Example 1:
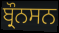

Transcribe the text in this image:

ਬ੍ਰੌਨਸਨ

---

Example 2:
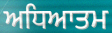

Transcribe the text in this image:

ਅਧਿਆਤਮ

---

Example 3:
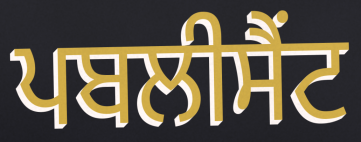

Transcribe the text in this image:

ਪਬਲੀਸੈਂਟ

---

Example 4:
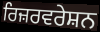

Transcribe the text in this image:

ਰਿਜ਼ਰਵਰੇਸ਼ਨ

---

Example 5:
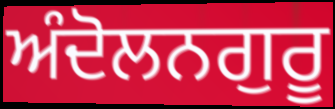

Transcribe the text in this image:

ਅੰਦੋਲਨਗੁਰੂ